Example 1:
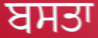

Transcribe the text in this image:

ਬਸਤਾ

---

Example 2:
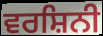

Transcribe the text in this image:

ਵਰਸ਼ਿਨੀ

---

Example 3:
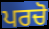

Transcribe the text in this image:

ਪਰਚੋ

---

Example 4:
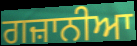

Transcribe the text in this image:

ਗਜ਼ਾਨੀਆ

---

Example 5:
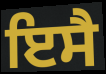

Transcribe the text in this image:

ਇਸੈ